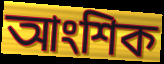
আংশিক